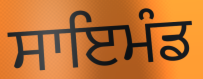
ਸਾਇਮੰਡ